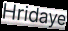
Hridaye